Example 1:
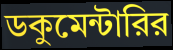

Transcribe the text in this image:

ডকুমেন্টারির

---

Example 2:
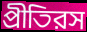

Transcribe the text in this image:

প্রীতিরস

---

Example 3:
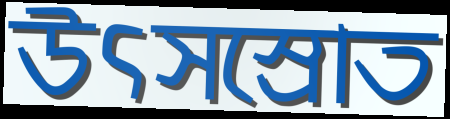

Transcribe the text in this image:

উৎসস্রোত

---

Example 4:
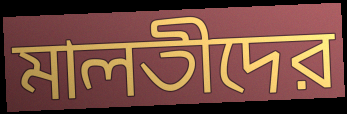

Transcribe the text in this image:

মালতীদের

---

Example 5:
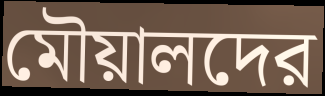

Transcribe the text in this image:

মৌয়ালদের